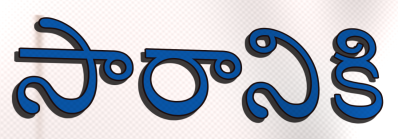
సారానికి